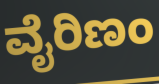
ವೈರಿಣಂ